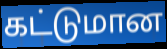
கட்டுமான